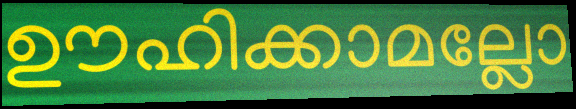
ഊഹിക്കാമല്ലോ